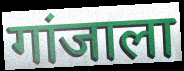
गांजाला